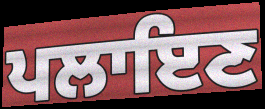
ਪਲਾਇਣ